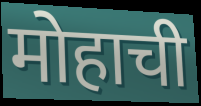
मोहाची